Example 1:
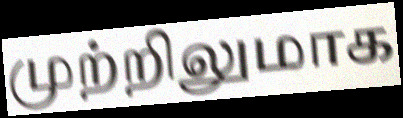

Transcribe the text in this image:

முற்றிலுமாக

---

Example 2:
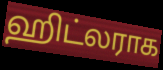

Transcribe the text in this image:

ஹிட்லராக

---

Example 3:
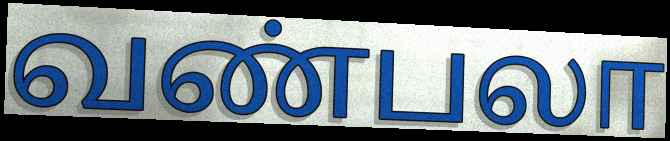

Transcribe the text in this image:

வண்பலா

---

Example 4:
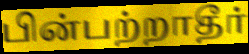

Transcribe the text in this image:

பின்பற்றாதீர்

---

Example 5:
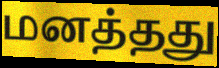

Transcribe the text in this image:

மனத்தது